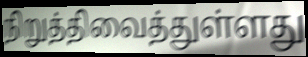
நிறுத்திவைத்துள்ளது